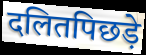
दलितपिछड़े